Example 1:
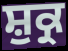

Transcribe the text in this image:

ਸ਼ੁਕ੍ਰ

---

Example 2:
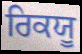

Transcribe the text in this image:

ਰਿਕਯੂ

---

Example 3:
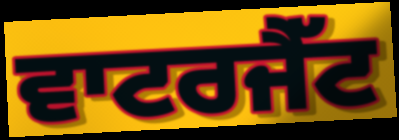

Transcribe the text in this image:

ਵਾਟਰਜੈੱਟ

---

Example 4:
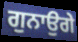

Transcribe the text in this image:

ਗੁਨਾਉਗੇ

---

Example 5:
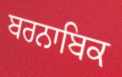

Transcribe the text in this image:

ਬਰਨਾਬਿਕ